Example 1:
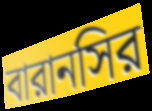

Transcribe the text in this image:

বারানসির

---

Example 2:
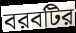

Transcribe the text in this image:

বরবটির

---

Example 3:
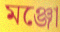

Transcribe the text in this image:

মঞ্জো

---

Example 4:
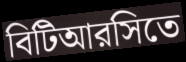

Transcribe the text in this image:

বিটিআরসিতে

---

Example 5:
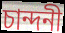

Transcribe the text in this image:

চান্দনী